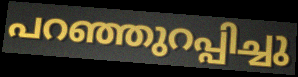
പറഞ്ഞുറപ്പിച്ചു